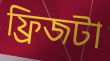
ফ্রিজটা